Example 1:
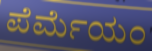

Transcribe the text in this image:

ಪೆರ್ಮೆಯಂ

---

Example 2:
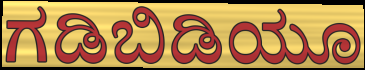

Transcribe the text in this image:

ಗಡಿಬಿಡಿಯೂ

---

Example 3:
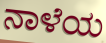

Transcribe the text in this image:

ನಾಳೆಯ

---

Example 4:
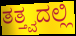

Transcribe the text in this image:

ತತ್ತ್ವದಲ್ಲಿ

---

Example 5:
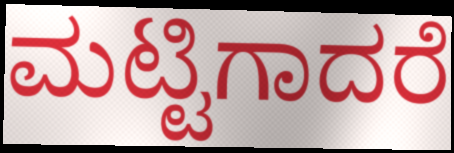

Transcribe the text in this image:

ಮಟ್ಟಿಗಾದರೆ